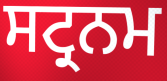
ਸਟ੍ਰਨਮ